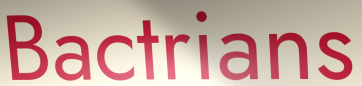
Bactrians